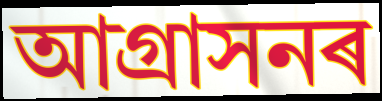
আগ্ৰাসনৰ